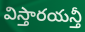
విస్తారయన్తీ